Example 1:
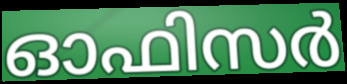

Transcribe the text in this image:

ഓഫിസർ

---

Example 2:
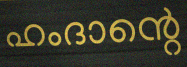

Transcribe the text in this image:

ഹംദാന്റെ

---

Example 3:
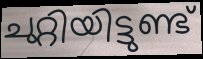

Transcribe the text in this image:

ചുറ്റിയിട്ടുണ്ട്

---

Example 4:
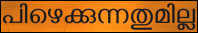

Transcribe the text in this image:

പിഴെക്കുന്നതുമില്ല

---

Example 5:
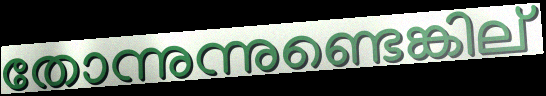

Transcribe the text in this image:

തോന്നുന്നുണ്ടെങ്കില്